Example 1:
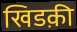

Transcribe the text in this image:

खिडक़ी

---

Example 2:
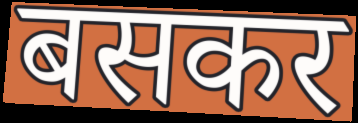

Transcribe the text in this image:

बसकर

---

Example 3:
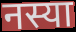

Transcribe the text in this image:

नस्या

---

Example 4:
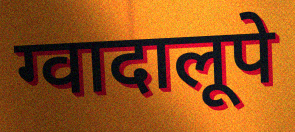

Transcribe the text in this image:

ग्वादालूपे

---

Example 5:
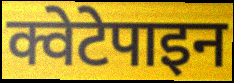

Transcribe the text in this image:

क्वेटेपाइन